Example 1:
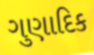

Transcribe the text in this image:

ગુણાદિક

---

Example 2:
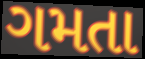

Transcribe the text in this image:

ગમતા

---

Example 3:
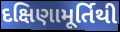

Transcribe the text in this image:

દક્ષિણામૂર્તિથી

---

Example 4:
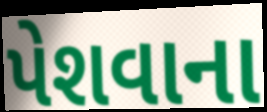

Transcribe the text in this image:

પેશવાના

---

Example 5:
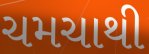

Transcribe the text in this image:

ચમચાથી